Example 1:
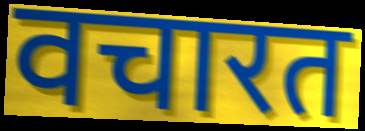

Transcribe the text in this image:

वचारत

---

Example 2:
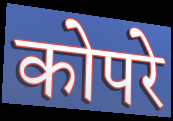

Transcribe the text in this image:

कोपरे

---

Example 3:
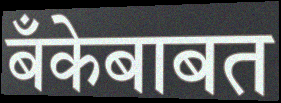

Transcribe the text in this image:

बँकेबाबत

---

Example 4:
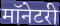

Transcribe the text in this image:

मॉनेटरी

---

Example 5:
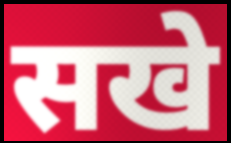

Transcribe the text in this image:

सखे